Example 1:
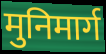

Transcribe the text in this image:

मुनिमार्ग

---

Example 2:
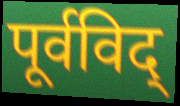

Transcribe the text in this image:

पूर्वविद्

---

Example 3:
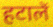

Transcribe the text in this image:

हटालें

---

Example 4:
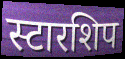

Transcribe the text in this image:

स्टारशिप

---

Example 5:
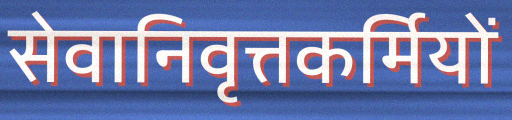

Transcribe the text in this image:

सेवानिवृत्तकर्मियों